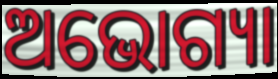
ଅଭୋଗ୍ୟା